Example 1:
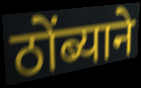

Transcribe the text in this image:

ठोंब्याने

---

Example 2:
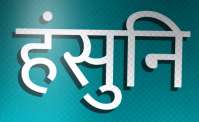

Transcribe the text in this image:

हंसुनि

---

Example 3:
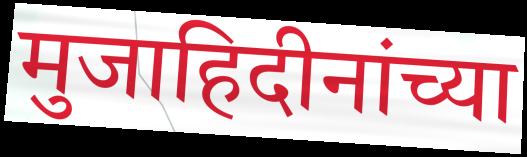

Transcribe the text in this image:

मुजाहिदीनांच्या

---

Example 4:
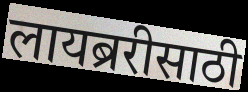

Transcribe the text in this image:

लायब्ररीसाठी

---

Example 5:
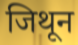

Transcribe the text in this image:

जिथून